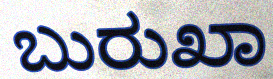
ಬುರುಖಾ